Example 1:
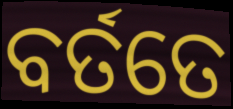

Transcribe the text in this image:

ବର୍ତତେ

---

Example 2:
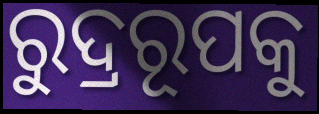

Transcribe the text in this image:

ରୁଦ୍ରରୂପକୁ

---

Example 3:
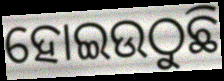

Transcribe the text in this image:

ହୋଇଉଠୁଛି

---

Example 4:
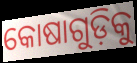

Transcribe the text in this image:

କୋଷାଗୁଡ଼ିକୁ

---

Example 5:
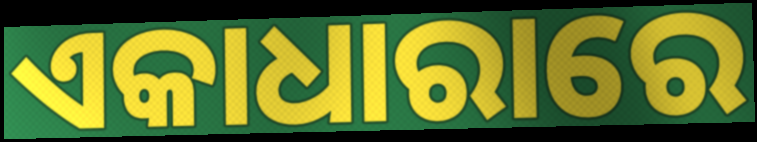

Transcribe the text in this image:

ଏକାଧାରାରେ